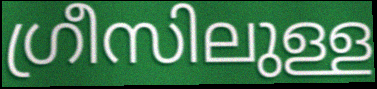
ഗ്രീസിലുള്ള